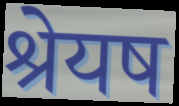
श्रेयष